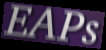
EAPs